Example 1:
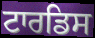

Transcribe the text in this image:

ਟਾਰਡਿਸ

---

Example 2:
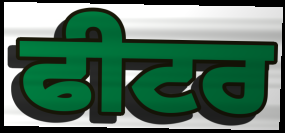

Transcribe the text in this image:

ਫੀਟਰ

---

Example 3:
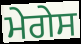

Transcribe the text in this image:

ਮੇਗੇਸ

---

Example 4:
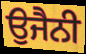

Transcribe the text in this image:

ਉਜੈਨੀ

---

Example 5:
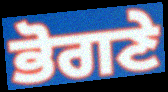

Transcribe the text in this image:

ਭੋਗਣੇ